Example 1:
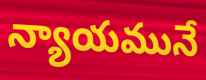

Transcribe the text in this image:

న్యాయమునే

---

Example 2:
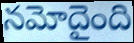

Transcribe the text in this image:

నమోదైంది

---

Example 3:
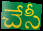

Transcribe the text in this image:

చేసీ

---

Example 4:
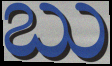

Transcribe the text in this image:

బు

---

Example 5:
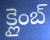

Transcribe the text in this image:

క్లైంబ్